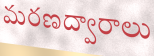
మరణద్వారాలు